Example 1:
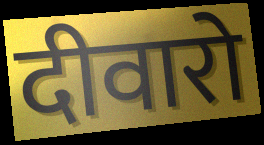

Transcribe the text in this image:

दीवारो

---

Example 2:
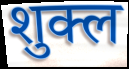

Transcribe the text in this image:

शुक्ल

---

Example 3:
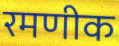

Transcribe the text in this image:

रमणीक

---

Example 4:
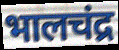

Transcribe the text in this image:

भालचंद्र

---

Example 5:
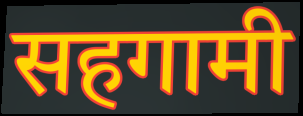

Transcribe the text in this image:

सहगामी